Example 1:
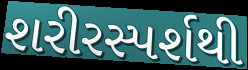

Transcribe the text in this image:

શરીરસ્પર્શથી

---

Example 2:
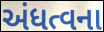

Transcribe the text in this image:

અંધત્વના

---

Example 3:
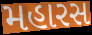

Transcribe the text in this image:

મહારસ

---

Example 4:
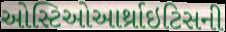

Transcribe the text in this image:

ઓસ્ટિઓઆર્થ્રાઇટિસની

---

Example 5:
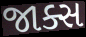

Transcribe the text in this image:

જાક્સ